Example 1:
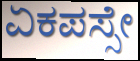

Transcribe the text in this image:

ಏಕಪಸ್ಸೇ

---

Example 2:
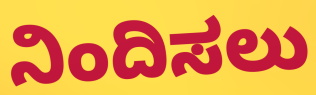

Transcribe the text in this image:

ನಿಂದಿಸಲು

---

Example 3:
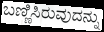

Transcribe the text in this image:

ಬಣ್ಣಿಸಿರುವುದನ್ನು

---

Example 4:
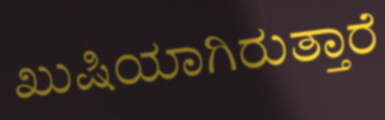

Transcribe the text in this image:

ಖುಷಿಯಾಗಿರುತ್ತಾರೆ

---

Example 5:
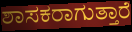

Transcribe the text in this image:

ಶಾಸಕರಾಗುತ್ತಾರೆ